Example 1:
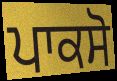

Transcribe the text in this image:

ਪਾਕਸੋ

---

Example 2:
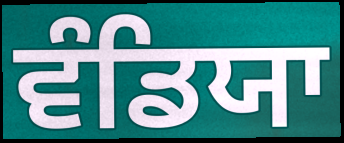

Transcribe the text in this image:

ਵੰਡਿਯਾ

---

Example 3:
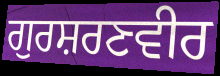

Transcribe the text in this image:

ਗੁਰਸ਼ਰਣਵੀਰ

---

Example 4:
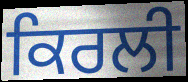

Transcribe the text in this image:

ਕਿਰਲੀ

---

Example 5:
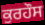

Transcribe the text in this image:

ਕੁਰਹੌਸ